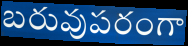
బరువుపరంగా